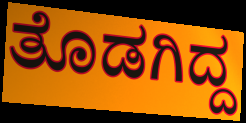
ತೊಡಗಿದ್ದ